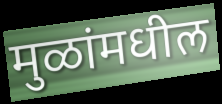
मुळांमधील